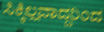
ಸಿಕ್ಕಿಲ್ಲವಾದ್ದರಿಂದ